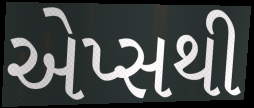
એપ્સથી